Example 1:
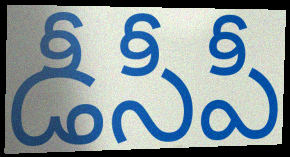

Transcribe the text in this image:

డీసీపీ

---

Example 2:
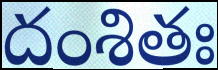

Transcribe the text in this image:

దంశితః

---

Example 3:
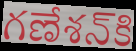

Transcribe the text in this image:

గణేశన్‍కి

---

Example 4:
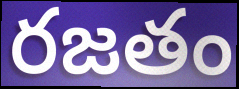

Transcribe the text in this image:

రజతం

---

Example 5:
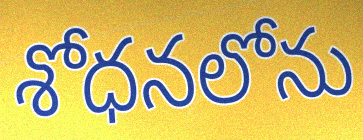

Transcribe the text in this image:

శోధనలోను